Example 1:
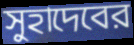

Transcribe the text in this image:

সুহাদেবের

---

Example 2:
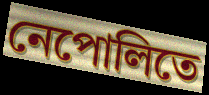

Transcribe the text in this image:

নেপোলিতে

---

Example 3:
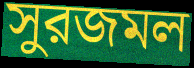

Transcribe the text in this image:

সুরজমল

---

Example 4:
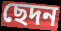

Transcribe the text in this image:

ছেদন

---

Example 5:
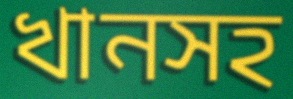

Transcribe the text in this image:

খানসহ